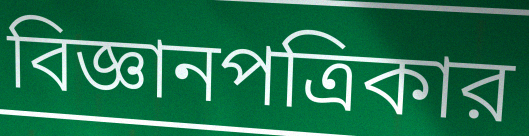
বিজ্ঞানপত্রিকার